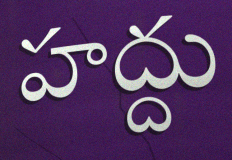
హద్దు